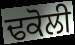
ਢਕੋਲੀ